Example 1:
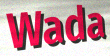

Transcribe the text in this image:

Wada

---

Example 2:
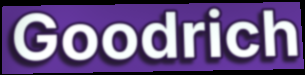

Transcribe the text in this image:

Goodrich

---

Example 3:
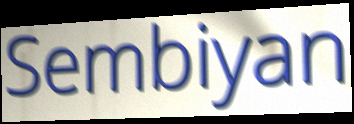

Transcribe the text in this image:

Sembiyan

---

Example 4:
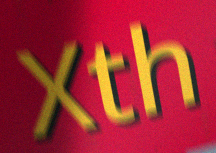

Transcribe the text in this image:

Xth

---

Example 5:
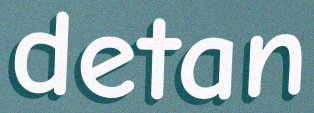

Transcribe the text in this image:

detan